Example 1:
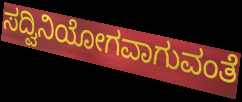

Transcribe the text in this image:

ಸದ್ವಿನಿಯೋಗವಾಗುವಂತೆ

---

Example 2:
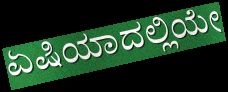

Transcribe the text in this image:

ಏಷಿಯಾದಲ್ಲಿಯೇ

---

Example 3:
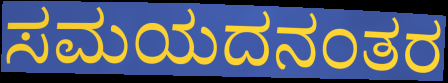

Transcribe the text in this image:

ಸಮಯದನಂತರ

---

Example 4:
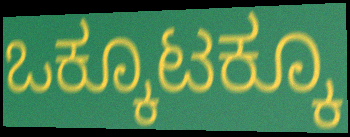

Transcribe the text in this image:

ಒಕ್ಕೂಟಕ್ಕೂ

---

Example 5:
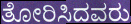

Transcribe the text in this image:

ತೋರಿಸಿದವರು